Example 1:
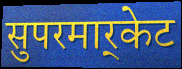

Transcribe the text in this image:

सुपरमार्केट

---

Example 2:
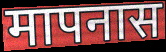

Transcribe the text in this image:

मापनास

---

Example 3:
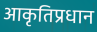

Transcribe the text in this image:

आकृतिप्रधान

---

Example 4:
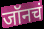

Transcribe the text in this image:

जॉनचं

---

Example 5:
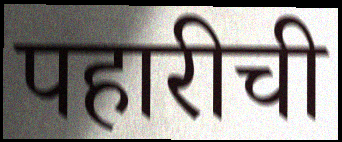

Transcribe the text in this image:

पहारीची